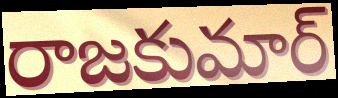
రాజకుమార్